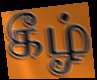
கீழ்